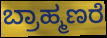
ಬ್ರಾಹ್ಮಣರೆ